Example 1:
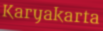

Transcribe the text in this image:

Karyakarta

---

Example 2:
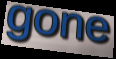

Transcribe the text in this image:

gone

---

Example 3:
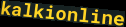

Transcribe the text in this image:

kalkionline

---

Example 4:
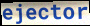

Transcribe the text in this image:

ejector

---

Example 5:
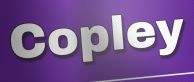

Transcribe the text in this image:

Copley